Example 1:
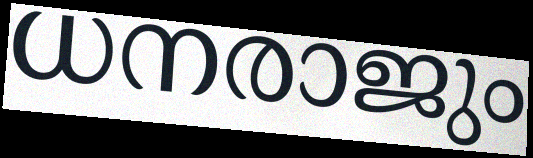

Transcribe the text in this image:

ധനരാജും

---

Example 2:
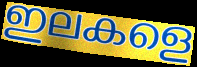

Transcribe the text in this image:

ഇലകളെ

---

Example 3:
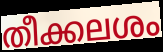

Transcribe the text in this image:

തീക്കലശം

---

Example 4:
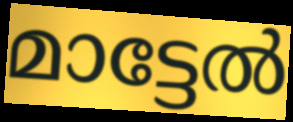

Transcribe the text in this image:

മാട്ടേൽ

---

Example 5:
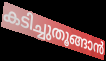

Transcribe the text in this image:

കടിച്ചുതൂങ്ങാൻ